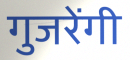
गुजरेंगी